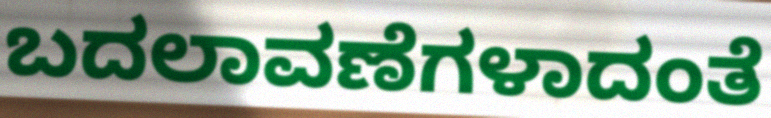
ಬದಲಾವಣೆಗಳಾದಂತೆ